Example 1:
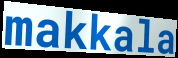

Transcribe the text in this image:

makkala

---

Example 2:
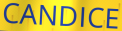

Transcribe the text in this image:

CANDICE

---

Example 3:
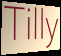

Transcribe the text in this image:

Tilly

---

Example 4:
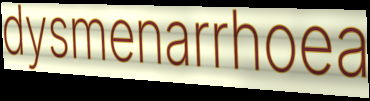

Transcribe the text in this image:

dysmenarrhoea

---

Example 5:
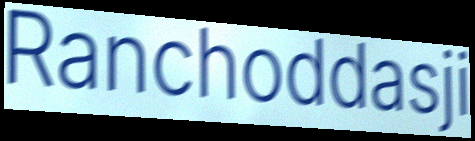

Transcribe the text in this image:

Ranchoddasji